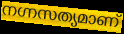
നഗ്നസത്യമാണ്